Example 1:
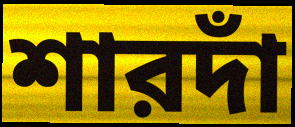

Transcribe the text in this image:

শারদাঁ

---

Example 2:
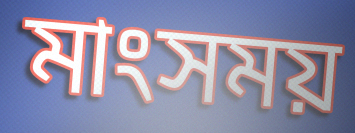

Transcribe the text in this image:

মাংসময়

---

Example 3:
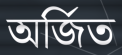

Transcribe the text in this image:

অর্জিত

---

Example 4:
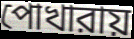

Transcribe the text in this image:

পোখারায়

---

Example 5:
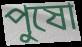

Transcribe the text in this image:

পুষো